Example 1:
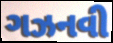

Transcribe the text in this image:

ગઝનવી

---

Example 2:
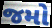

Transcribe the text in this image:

જમો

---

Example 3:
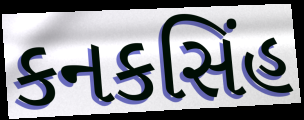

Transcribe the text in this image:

કનકસિંહ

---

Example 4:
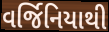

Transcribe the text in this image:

વર્જિનિયાથી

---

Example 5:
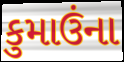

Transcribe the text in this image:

કુમાઉંના